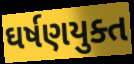
ઘર્ષણયુક્ત